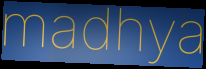
madhya